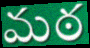
మఠ